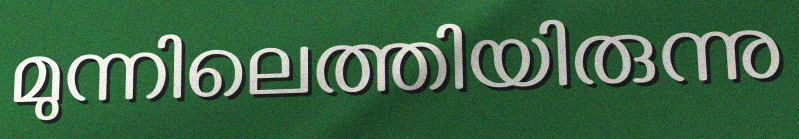
മുന്നിലെത്തിയിരുന്നു